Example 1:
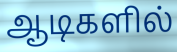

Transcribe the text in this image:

ஆடிகளில்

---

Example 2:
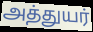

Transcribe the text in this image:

அத்துயர்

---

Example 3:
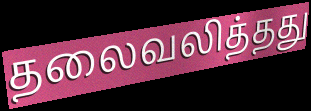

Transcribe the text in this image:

தலைவலித்தது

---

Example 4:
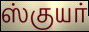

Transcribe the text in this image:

ஸ்குயர்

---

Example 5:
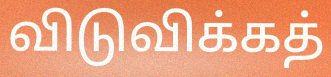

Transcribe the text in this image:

விடுவிக்கத்